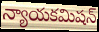
న్యాయకమిషన్